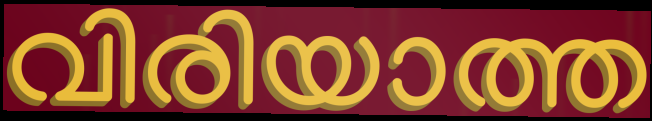
വിരിയാത്ത